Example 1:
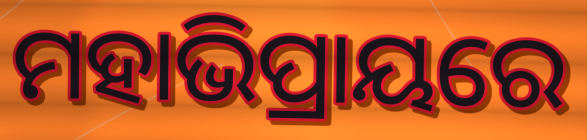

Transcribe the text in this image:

ମହାଭିପ୍ରାୟରେ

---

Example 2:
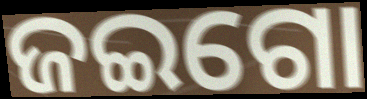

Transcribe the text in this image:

ଜଇଗୋ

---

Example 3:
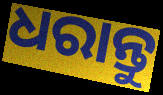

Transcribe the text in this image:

ଧରାନ୍ତୁ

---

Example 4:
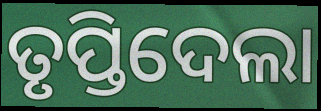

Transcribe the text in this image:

ତୃପ୍ତିଦେଲା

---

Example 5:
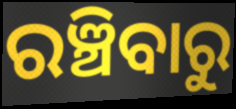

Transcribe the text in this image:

ରଞ୍ଚିବାରୁ